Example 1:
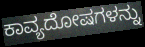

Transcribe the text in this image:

ಕಾವ್ಯದೋಷಗಳನ್ನು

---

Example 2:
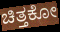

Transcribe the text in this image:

ಚಿತ್ತಕೋ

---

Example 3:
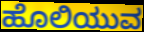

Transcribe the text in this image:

ಹೊಲಿಯುವ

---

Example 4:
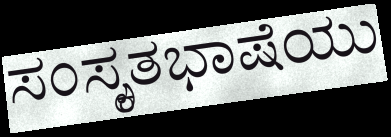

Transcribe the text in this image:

ಸಂಸ್ಕೃತಭಾಷೆಯು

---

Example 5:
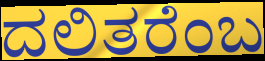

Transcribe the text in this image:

ದಲಿತರೆಂಬ